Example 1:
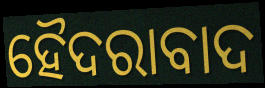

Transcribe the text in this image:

ହୈଦରାବାଦ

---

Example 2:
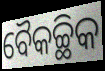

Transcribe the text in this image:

ବୈକଚ୍ଛିକ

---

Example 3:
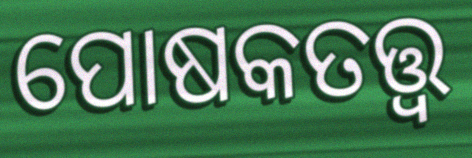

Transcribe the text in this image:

ପୋଷକତତ୍ତ୍ବ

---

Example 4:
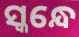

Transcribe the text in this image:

ସ୍କନ୍ଧେ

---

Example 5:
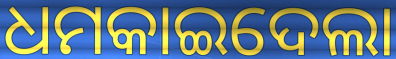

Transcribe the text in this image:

ଧମକାଇଦେଲା